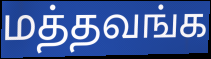
மத்தவங்க